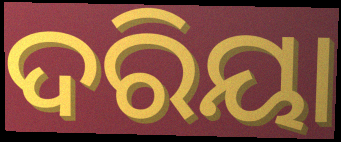
ଦରିୟା